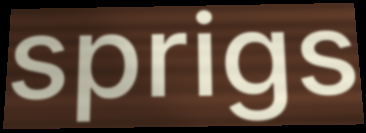
sprigs